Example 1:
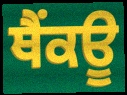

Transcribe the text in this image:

ਥੈਂਕਊ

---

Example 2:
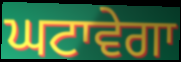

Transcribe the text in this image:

ਘਟਾਵੇਗਾ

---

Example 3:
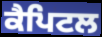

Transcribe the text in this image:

ਕੈਪਿਟਲ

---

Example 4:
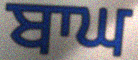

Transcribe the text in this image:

ਬਾਘ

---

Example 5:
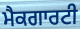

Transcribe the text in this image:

ਮੈਕਗਾਰਟੀ